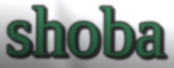
shoba